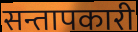
सन्तापकारी